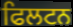
ਫਿਲਟਨ